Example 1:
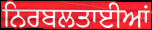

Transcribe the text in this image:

ਨਿਰਬਲਤਾਈਆਂ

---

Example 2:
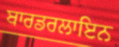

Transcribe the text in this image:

ਬਾਰਡਰਲਾਇਨ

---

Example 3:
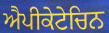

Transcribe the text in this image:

ਐਪੀਕੇਟੇਚਿਨ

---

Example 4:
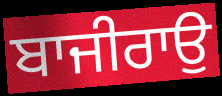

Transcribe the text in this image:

ਬਾਜੀਰਾਉ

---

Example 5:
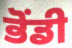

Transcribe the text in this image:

ਭੋਂਡੀ